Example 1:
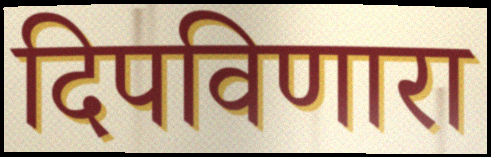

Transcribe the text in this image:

दिपविणारा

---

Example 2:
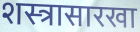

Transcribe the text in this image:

शस्त्रासारखा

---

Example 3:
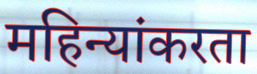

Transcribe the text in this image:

महिन्यांकरता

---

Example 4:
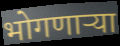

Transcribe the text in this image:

भोगणाऱ्या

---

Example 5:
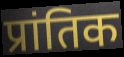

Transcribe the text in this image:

प्रांतिक